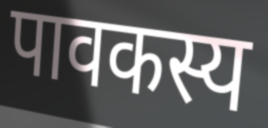
पावकस्य